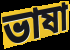
ভাষা